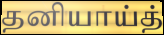
தனியாய்த்